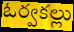
ఓర్వకల్లు